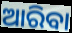
ଆରିବା